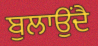
ਬੁਲਾਉਂਦੈ